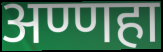
अण्णहा